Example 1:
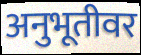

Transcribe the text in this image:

अनुभूतीवर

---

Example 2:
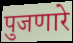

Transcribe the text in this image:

पुजणारे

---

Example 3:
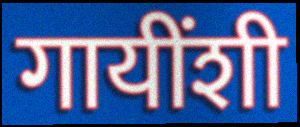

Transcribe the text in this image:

गायींशी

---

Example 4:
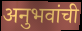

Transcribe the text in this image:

अनुभवांची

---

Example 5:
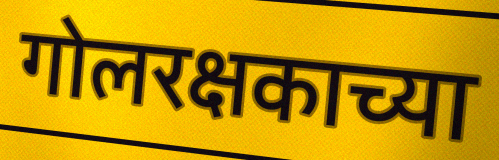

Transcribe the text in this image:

गोलरक्षकाच्या